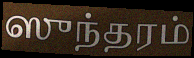
ஸுந்தரம்